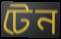
টেন